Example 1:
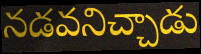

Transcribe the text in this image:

నడవనిచ్చాడు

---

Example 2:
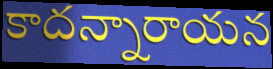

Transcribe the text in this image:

కాదన్నారాయన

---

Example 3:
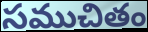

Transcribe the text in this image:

సముచితం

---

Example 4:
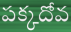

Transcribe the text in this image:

పక్కదోవ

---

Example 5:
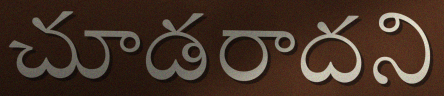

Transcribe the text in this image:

చూడరాదని